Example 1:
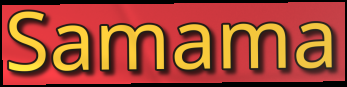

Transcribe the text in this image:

Samama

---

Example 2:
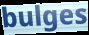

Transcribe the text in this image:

bulges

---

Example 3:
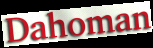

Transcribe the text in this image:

Dahoman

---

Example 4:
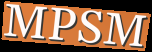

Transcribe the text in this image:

MPSM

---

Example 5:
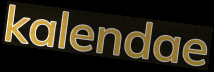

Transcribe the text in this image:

kalendae